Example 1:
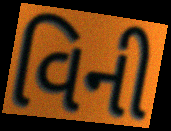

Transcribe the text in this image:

વિની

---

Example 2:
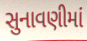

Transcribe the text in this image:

સુનાવણીમાં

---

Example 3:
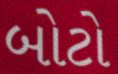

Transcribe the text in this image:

બોટો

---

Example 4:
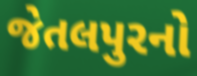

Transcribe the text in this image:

જેતલપુરનો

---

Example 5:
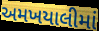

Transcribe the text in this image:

અમખયાલીમાં